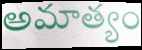
అమాత్యం